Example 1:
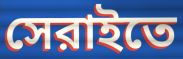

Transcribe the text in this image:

সেরাইতে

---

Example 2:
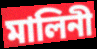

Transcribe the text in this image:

মালিনী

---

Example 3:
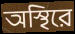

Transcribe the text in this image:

অস্থিরে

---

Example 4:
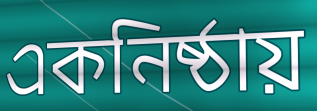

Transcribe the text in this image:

একনিষ্ঠায়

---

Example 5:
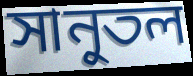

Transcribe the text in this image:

সানুতল